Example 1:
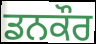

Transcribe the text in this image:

ਡਨਕੌਰ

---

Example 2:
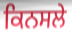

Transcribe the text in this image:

ਕਿਨਸਲੇ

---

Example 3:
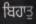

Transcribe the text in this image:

ਬਿਹਾਤੁ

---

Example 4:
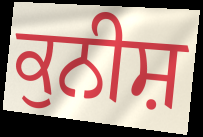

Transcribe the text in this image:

ਕੁਨੀਸ਼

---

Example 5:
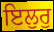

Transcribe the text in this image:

ਇਲੁਰੁ